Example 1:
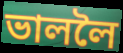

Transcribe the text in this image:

ভাললৈ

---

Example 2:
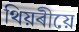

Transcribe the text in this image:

থিয়ৰীয়ে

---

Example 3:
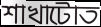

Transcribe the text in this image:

শাখাটোত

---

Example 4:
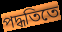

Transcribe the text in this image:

পদ্ধতিতে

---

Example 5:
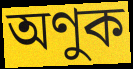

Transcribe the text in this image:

অণুক